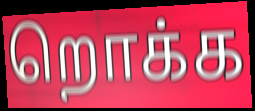
றொக்க